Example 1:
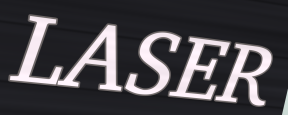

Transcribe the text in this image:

LASER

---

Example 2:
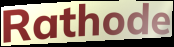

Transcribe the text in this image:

Rathode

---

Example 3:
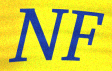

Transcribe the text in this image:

NF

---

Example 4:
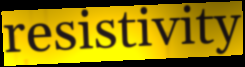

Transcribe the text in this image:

resistivity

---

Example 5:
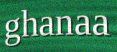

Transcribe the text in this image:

ghanaa